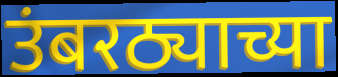
उंबरठ्याच्या